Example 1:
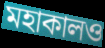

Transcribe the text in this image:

মহাকালও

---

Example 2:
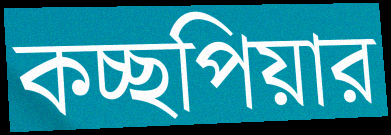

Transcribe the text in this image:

কচ্ছপিয়ার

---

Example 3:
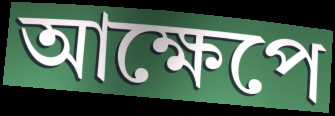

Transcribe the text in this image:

আক্ষেপে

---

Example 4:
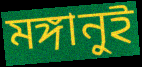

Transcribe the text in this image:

মঙ্গানুই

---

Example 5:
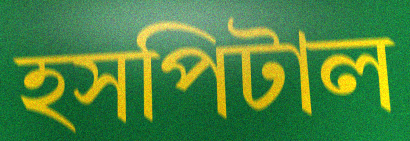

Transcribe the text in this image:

হসপিটাল